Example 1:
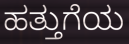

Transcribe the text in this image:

ಹತ್ತುಗೆಯ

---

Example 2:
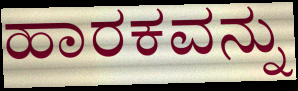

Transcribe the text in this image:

ಹಾರಕವನ್ನು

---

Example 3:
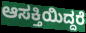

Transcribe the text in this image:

ಆಸಕ್ತಿಯಿದ್ದರೆ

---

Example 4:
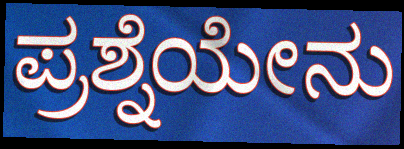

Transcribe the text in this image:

ಪ್ರಶ್ನೆಯೇನು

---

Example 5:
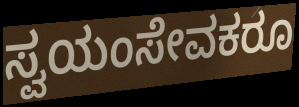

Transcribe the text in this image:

ಸ್ವಯಂಸೇವಕರೂ